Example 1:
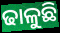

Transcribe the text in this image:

ଢାଳୁଛି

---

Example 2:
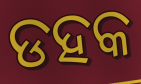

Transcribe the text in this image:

ଡହକ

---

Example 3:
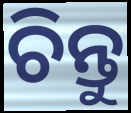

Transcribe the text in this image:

ଚିନ୍ତୁ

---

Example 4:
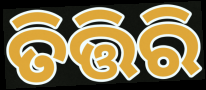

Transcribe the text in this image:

ତିତ୍ତିରି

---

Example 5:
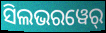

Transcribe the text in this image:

ସିଲଭରୱେର୍